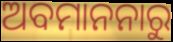
ଅବମାନନାରୁ